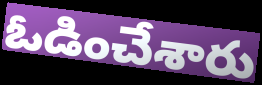
ఓడించేశారు